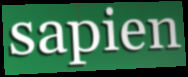
sapien